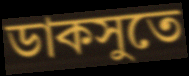
ডাকসুতে